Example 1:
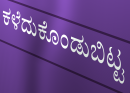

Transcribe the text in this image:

ಕಳೆದುಕೊಂಡುಬಿಟ್ಟ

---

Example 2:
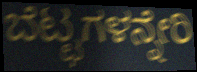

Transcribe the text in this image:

ಬೆಟ್ಟಗಳನ್ನೇರಿ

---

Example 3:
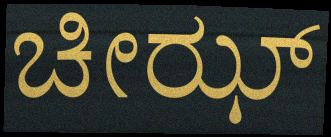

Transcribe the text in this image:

ಚೀಝ್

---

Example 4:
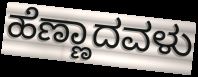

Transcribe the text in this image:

ಹೆಣ್ಣಾದವಳು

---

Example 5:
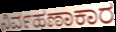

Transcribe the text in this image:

ನಿರ್ವಹಣಾಕಾರ